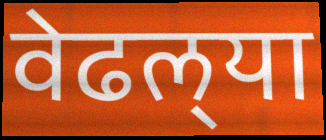
वेढल्या